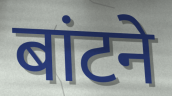
बांटने